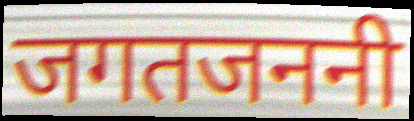
जगतजननी